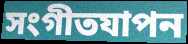
সংগীতযাপন